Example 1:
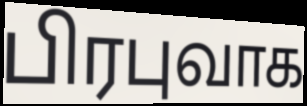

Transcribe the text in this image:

பிரபுவாக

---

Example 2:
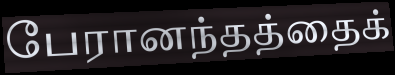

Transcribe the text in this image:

பேரானந்தத்தைக்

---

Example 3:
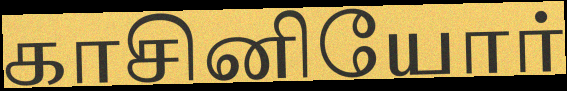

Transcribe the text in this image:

காசினியோர்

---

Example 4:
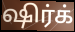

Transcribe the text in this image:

ஷிர்க்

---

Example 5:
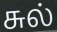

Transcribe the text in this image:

சுல்